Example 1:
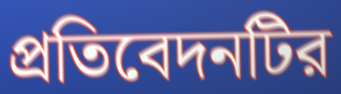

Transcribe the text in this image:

প্রতিবেদনটির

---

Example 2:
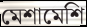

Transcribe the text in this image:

মেশামেশি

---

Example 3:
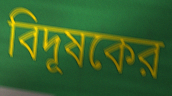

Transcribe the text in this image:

বিদূষকের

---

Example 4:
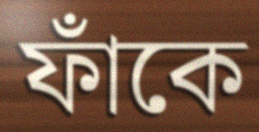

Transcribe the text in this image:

ফাঁকে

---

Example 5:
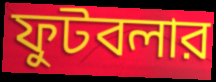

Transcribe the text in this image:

ফুটবলার